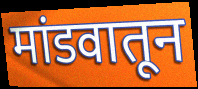
मांडवातून